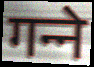
गन्‍ने